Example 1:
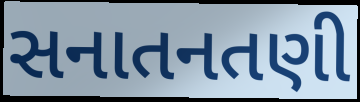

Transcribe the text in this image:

સનાતનતણી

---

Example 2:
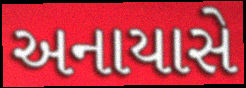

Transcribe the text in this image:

અનાયાસે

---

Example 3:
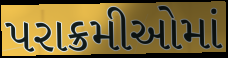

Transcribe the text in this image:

પરાક્રમીઓમાં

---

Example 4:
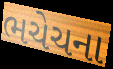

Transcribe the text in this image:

ભચેચના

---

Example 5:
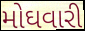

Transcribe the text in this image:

મોઘવારી